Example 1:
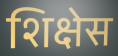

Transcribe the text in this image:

शिक्षेस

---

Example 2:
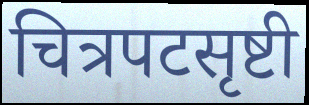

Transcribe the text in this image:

चित्रपटसृष्टी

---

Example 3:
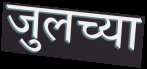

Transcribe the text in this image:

जुलच्या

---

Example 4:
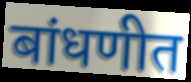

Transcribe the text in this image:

बांधणीत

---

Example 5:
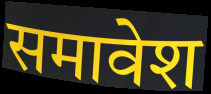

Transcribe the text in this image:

समावेश